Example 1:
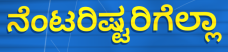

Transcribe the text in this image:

ನೆಂಟರಿಷ್ಟರಿಗೆಲ್ಲಾ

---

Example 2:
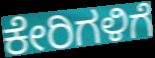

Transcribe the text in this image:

ಕೇರಿಗಳಿಗೆ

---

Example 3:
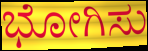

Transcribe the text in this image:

ಭೋಗಿಸು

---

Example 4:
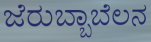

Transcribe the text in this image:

ಜೆರುಬ್ಬಾಬೆಲನ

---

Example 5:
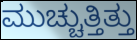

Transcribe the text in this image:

ಮುಚ್ಚುತ್ತಿತ್ತು